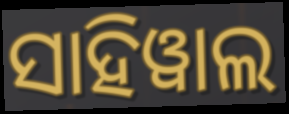
ସାହିୱାଲ